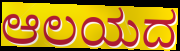
ಆಲಯದ